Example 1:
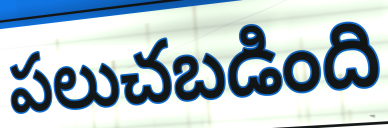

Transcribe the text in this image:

పలుచబడింది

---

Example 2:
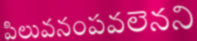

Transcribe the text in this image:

పిలువనంపవలెనని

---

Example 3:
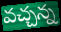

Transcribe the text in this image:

వచ్చన్న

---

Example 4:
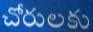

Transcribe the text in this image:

చోరులకు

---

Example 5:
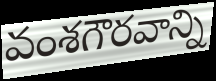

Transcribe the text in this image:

వంశగౌరవాన్ని